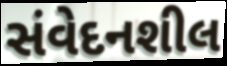
સંવેદનશીલ